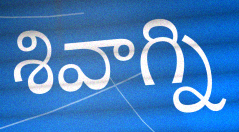
శివాగ్ని